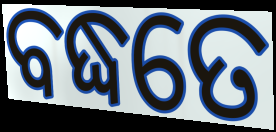
ବଦ୍ଧତେ